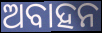
ଅବାହନ